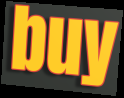
buy